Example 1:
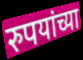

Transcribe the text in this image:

रुपयांच्या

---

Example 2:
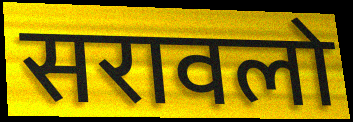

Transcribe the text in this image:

सरावलो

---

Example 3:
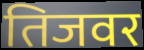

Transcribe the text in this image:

तिजवर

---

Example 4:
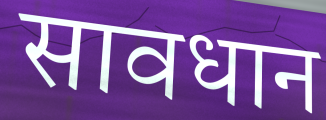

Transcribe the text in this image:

सावधान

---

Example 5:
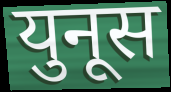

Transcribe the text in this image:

युनूस